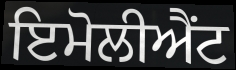
ਇਮੋਲੀਐਂਟ